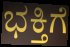
ಭಕ್ತಿಗೆ